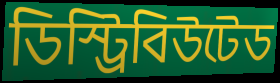
ডিস্ট্রিবিউটেড